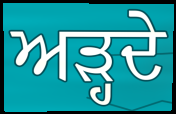
ਅੜ੍ਹਦੇ